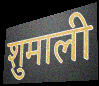
शुमाली